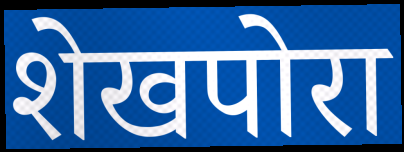
शेखपोरा